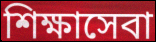
শিক্ষাসেবা